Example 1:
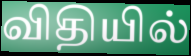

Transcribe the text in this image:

விதியில்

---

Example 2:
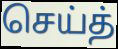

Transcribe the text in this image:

செய்த்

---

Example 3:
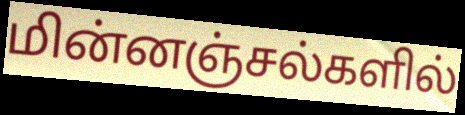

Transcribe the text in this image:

மின்னஞ்சல்களில்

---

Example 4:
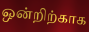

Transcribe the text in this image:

ஒன்றிற்காக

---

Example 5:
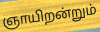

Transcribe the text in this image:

ஞாயிறன்றும்